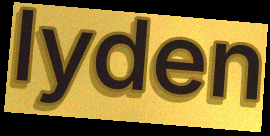
lyden